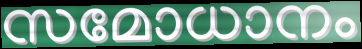
സമോധാനം